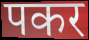
पकर